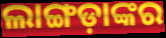
ଲାଙ୍ଗଡ଼ାଙ୍କର